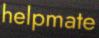
helpmate